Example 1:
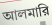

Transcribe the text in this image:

আলমারি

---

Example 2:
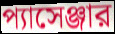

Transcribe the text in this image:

প্যাসেঞ্জার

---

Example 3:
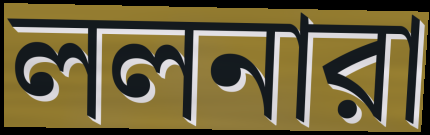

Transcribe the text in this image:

ললনারা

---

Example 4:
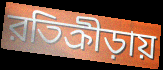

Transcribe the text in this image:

রতিক্রীড়ায়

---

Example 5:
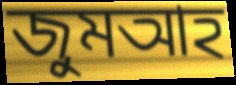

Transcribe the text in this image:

জুমআহ